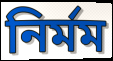
নিৰ্মম